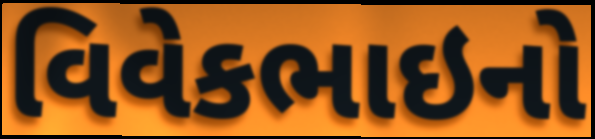
વિવેકભાઇનો